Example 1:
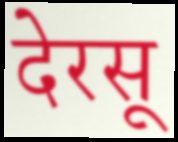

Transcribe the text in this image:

देरसू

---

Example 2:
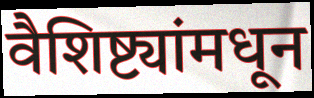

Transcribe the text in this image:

वैशिष्ट्यांमधून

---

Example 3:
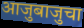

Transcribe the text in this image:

आजुबाजुचा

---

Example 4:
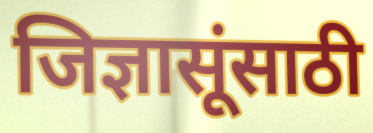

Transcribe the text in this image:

जिज्ञासूंसाठी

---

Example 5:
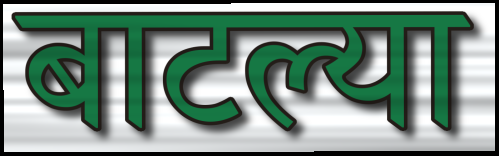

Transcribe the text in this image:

बाटल्या